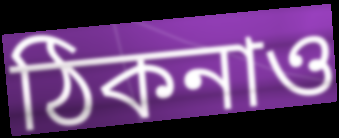
ঠিকনাও